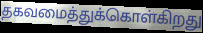
தகவமைத்துக்கொள்கிறது